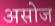
असोज